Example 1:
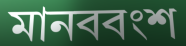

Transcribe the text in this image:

মানববংশ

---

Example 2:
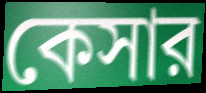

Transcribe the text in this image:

কেসার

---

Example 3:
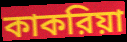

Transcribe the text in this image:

কাকরিয়া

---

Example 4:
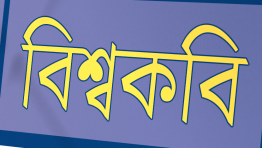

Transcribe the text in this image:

বিশ্বকবি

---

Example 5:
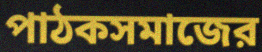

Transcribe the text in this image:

পাঠকসমাজের